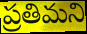
ప్రతిమని